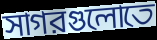
সাগরগুলোতে